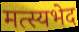
मत्स्यभेद